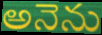
అనెను